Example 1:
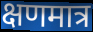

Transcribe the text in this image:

क्षणमात्र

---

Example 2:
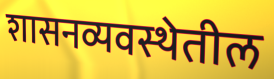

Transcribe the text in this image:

शासनव्यवस्थेतील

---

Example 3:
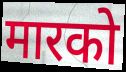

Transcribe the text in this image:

मारको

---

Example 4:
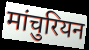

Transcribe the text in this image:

मांचुरियन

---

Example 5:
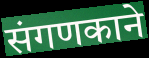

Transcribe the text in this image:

संगणकाने